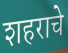
शहराचे